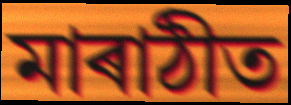
মাৰাঠীত